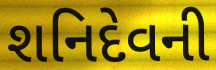
શનિદેવની